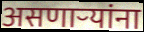
असणाऱ्यांना